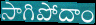
సాగిపోదాం